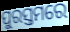
ପୁରସ୍ତମରେ